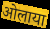
ओलाया